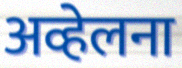
अव्हेलना